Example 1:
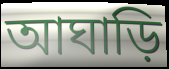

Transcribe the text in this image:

আঘাড়ি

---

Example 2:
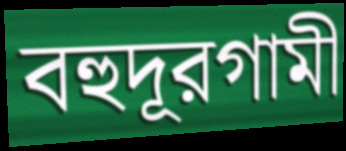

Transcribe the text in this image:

বহুদূরগামী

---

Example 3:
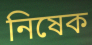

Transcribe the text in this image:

নিষেক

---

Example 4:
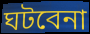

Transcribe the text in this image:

ঘটবেনা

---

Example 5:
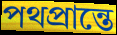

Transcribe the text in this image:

পথপ্রান্তে